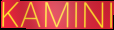
KAMINI